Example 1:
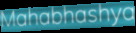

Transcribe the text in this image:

Mahabhashya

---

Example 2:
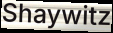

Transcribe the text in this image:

Shaywitz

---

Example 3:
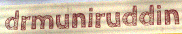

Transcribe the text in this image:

drmuniruddin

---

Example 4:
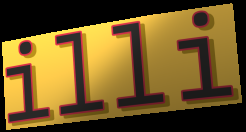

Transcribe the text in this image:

illi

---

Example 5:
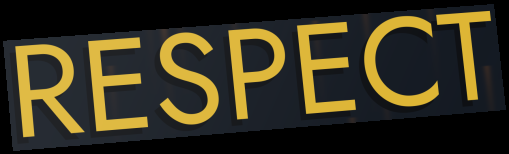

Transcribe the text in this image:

RESPECT